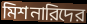
মিশনারিদের